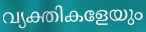
വ്യക്തികളേയും